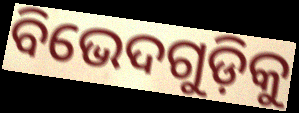
ବିଭେଦଗୁଡ଼ିକୁ